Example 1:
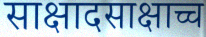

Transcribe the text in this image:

साक्षादसाक्षाच्च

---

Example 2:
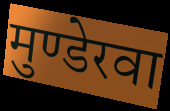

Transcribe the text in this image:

मुण्डेरवा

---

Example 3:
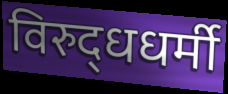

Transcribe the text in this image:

विरुद्धधर्मी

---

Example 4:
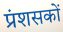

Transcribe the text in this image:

प्रंशसकों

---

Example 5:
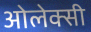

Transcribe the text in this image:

ओलेक्सी